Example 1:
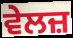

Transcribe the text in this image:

ਵੇਲਜ਼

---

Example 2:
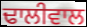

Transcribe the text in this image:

ਢਾਲੀਵਾਲ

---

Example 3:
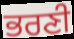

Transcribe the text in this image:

ਭਰਣੀ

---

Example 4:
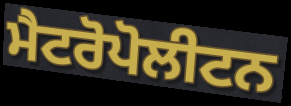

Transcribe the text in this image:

ਮੈਟਰੋਪੋਲੀਟਨ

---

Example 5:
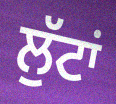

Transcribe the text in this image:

ਲੁੱਟਾਂ